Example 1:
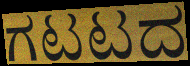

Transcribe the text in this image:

ಗಟಟದ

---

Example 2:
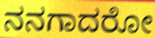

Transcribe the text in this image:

ನನಗಾದರೋ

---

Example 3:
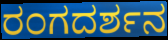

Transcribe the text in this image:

ರಂಗದರ್ಶನ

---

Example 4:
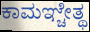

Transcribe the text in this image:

ಕಾಮಞ್ಚೇತ್ಥ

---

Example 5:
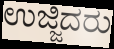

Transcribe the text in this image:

ಉಜ್ಜಿದರು